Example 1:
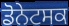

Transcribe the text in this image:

ਡੋਨੇਟਸਕ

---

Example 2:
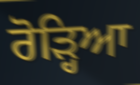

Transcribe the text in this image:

ਰੋੜ੍ਹਿਆ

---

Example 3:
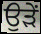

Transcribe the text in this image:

ਉੜੇਂ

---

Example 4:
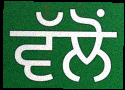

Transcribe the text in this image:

ਵੱਲੋਂ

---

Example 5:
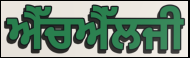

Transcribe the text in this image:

ਐੱਚਐੱਲਜੀ